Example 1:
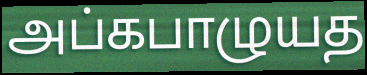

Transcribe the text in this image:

அப்கபாழுயத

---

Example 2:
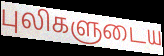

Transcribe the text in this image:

புலிகளுடைய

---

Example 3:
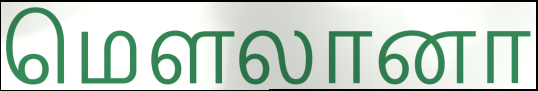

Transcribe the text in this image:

மௌலானா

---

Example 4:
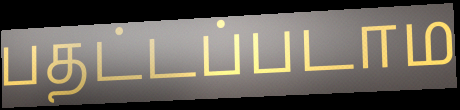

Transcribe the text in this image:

பதட்டப்படாம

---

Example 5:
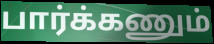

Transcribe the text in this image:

பார்க்கணும்